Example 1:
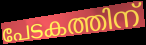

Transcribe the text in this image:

പേടകത്തിന്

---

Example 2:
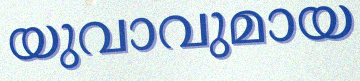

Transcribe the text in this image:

യുവാവുമായ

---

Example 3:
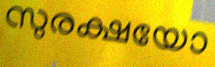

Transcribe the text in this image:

സുരക്ഷയോ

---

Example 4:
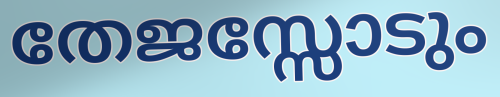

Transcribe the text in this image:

തേജസ്സോടും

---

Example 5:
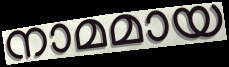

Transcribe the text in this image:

നാമമായ